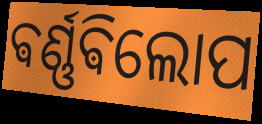
ଵର୍ଣ୍ଣଵିଲୋପ